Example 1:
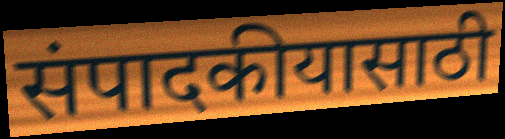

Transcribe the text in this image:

संपादकीयासाठी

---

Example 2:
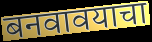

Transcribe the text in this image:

बनवावयाचा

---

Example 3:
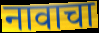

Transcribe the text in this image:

नावाचा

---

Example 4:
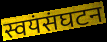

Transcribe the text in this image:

स्वयंसंघटन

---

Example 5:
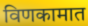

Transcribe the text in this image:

विणकामात